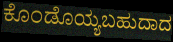
ಕೊಂಡೊಯ್ಯಬಹುದಾದ